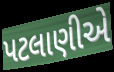
પટલાણીએ